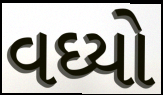
વઘ્યો